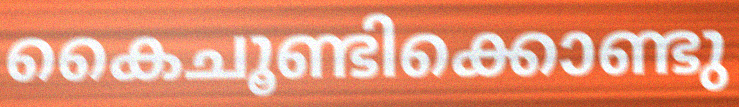
കൈചൂണ്ടിക്കൊണ്ടു